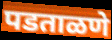
पडताळणे